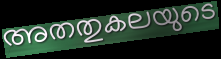
അതതുകലയുടെ